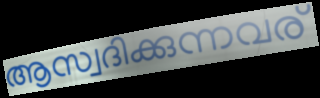
ആസ്വദിക്കുന്നവര്